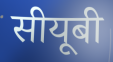
सीयूबी